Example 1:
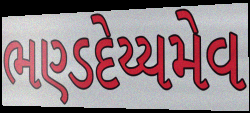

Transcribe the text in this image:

ભણ્ડદેય્યમેવ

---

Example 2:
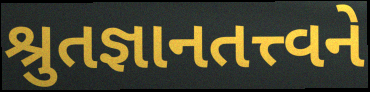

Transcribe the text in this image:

શ્રુતજ્ઞાનતત્ત્વને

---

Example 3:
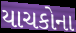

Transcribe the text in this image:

યાચકોના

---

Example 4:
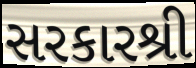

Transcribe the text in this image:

સરકારશ્રી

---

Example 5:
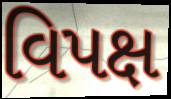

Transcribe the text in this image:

વિપક્ષ